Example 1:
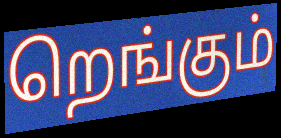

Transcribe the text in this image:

றெங்கும்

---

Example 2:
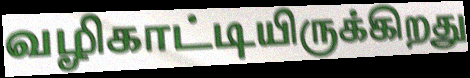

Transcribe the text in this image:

வழிகாட்டியிருக்கிறது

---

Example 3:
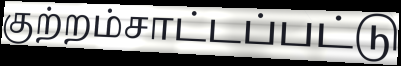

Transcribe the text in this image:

குற்றம்சாட்டப்பட்டு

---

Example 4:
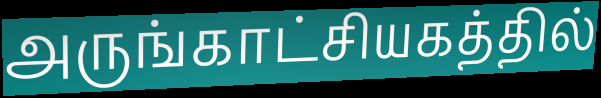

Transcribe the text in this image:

அருங்காட்சியகத்தில்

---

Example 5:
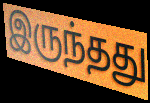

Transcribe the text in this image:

இருந்தது